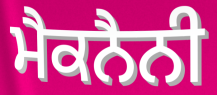
ਮੈਕਨੈਨੀ